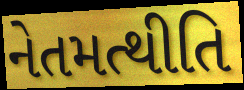
નેતમત્થીતિ